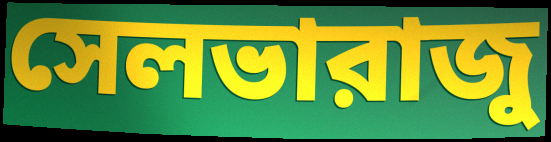
সেলভারাজু